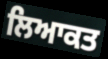
ਲਿਆਕਤ